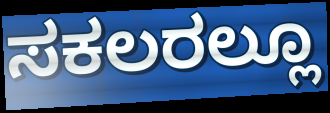
ಸಕಲರಲ್ಲೂ